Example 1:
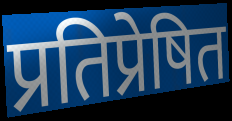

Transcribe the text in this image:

प्रतिप्रेषित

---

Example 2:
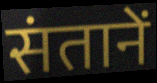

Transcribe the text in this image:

संतानें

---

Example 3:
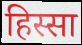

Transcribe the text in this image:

हिस्सा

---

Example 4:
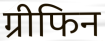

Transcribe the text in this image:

ग्रीफिन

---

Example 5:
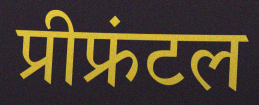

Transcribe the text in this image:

प्रीफ्रंटल